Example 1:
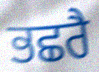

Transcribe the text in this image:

ਭਛਰੈ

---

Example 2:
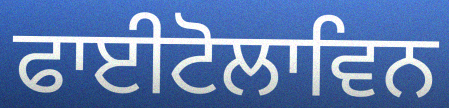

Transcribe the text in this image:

ਫਾਈਟੋਲਾਵਿਨ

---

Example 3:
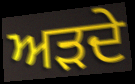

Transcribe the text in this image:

ਅੜਦੇ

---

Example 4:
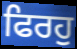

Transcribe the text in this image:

ਫਿਰਹੁ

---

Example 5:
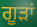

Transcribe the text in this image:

ਗੂੜਾਂ